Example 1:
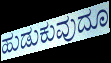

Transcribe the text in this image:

ಹುಡುಕುವುದೂ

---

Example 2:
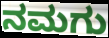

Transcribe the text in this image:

ನಮಗು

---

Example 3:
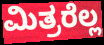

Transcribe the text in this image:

ಮಿತ್ರರೆಲ್ಲ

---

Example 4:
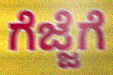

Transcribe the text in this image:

ಗೆಜ್ಜೆಗೆ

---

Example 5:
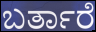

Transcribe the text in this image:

ಬರ್ತಾರೆ